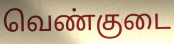
வெண்குடை